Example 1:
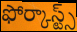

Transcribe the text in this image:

ఫోర్కాస్ట్స్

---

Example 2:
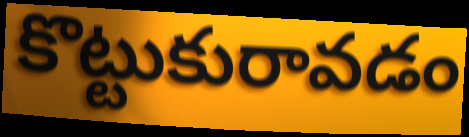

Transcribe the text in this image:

కొట్టుకురావడం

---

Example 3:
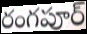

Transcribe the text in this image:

రంగపూర్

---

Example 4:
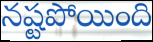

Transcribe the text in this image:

నష్టపోయింది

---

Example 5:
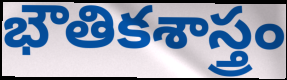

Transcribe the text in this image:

భౌతికశాస్త్రం